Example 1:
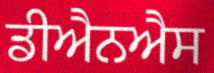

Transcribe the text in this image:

ਡੀਐਨਐਸ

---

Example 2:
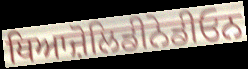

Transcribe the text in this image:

ਥਿਆਜ਼ੋਲਿਡੀਨੇਡੀਓਨ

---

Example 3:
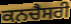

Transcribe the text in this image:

ਕਨਚੈਸਰੀ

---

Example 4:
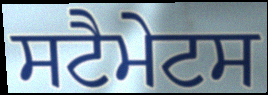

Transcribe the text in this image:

ਸਟੈਮੇਟਸ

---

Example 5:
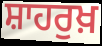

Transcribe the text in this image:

ਸ਼ਾਹਰੁਖ਼